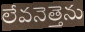
లేవనెత్తెను